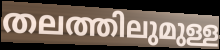
തലത്തിലുമുള്ള